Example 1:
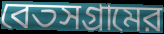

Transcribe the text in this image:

বেতসগ্রামের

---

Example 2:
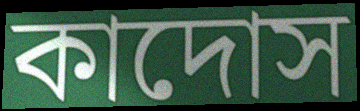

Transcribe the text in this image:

কাদোস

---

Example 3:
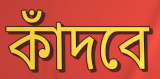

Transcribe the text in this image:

কাঁদবে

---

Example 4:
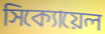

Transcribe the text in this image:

সিক্যোয়েল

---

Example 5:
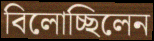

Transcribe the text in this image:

বিলোচ্ছিলেন